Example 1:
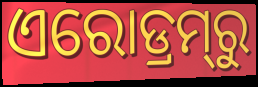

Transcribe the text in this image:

ଏରୋଡ୍ରମ୍‍ରୁ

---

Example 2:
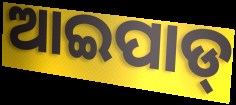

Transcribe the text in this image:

ଆଇପାଡ୍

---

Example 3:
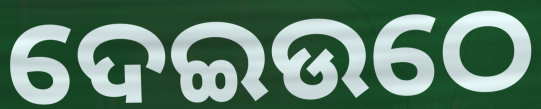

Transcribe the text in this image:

ଦେଇଉଠେ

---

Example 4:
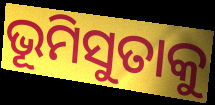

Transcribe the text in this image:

ଭୂମିସୁତାକୁ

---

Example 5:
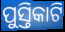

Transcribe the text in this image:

ପୁସ୍ତିକାଟି